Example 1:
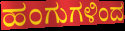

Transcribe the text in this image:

ಹಂಗುಗಳಿಂದ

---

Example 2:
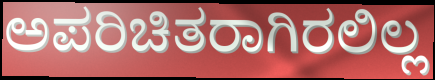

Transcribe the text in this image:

ಅಪರಿಚಿತರಾಗಿರಲಿಲ್ಲ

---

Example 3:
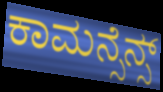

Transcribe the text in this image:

ಕಾಮನ್ಸೆನ್ಸ್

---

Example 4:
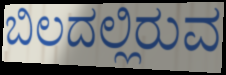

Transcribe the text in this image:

ಬಿಲದಲ್ಲಿರುವ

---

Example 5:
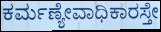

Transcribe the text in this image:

ಕರ್ಮಣ್ಯೇವಾಧಿಕಾರಸ್ತೇ